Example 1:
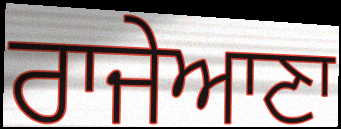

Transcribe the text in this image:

ਰਾਜੇਆਣਾ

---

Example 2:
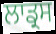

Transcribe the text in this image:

ਲਾਡ੍ਰਸ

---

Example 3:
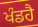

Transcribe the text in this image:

ਖੰਡਹੈ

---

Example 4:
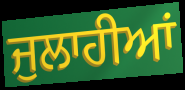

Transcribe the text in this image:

ਜੁਲਾਹੀਆਂ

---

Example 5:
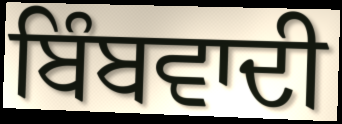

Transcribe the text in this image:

ਬਿੰਬਵਾਦੀ